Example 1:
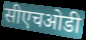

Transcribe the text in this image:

सीएचओडी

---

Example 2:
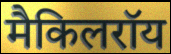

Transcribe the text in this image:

मैकिलरॉय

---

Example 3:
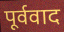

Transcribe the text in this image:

पूर्ववाद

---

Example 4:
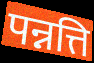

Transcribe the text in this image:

पन्नत्ति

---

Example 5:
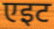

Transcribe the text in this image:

एइट